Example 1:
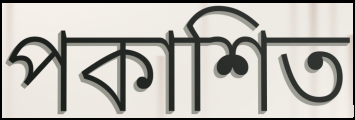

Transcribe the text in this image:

পকাশিত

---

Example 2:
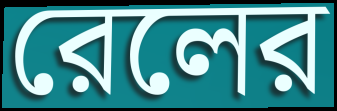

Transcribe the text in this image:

রেলের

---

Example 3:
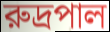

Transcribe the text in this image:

রুদ্রপাল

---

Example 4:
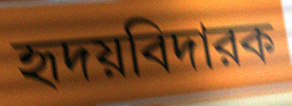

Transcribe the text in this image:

হৃদয়বিদারক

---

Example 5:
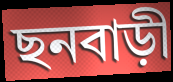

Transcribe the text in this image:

ছনবাড়ী